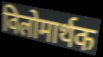
विलोमार्थक